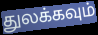
துலக்கவும்